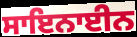
ਸਾਇਨਾਈਨ